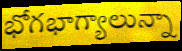
భోగభాగ్యాలున్నా